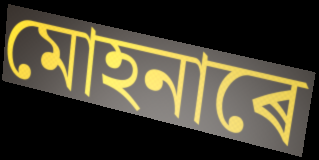
মোহনাৰে